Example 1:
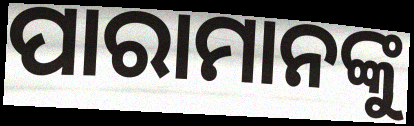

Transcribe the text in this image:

ପାରାମାନଙ୍କୁ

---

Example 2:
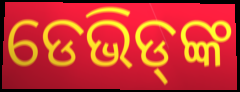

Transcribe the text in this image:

ଡେଭିଡ୍‌ଙ୍କ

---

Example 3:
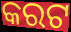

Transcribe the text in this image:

କରଟ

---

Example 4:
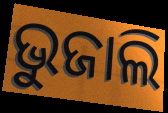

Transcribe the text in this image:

ଭୁଜାଲି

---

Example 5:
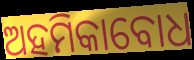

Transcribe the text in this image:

ଅହମିକାବୋଧ